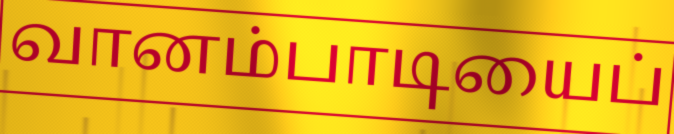
வானம்பாடியைப்